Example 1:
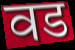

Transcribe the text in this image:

वड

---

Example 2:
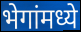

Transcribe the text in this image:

भेगांमध्ये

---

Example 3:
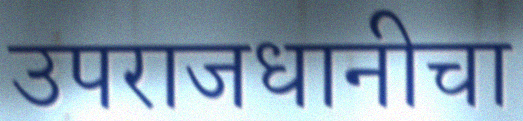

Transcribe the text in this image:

उपराजधानीचा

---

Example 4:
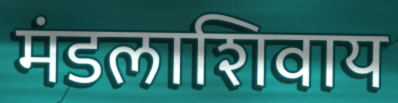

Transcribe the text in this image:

मंडलाशिवाय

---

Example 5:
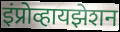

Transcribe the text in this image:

इंप्रोव्हायझेशन